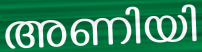
അണിയി